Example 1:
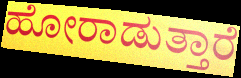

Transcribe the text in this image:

ಹೋರಾಡುತ್ತಾರೆ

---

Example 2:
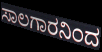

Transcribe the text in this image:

ಸಾಲಗಾರನಿಂದ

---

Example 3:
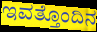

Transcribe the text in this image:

ಇವತ್ತೊಂದಿನ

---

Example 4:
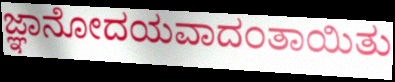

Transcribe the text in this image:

ಜ್ಞಾನೋದಯವಾದಂತಾಯಿತು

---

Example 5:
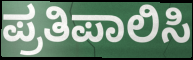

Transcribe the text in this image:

ಪ್ರತಿಪಾಲಿಸಿ